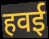
हवई